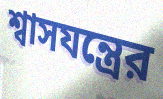
শ্বাসযন্ত্রের